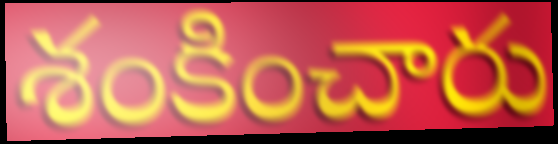
శంకించారు